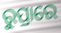
ରୁପ୍ରାରେ